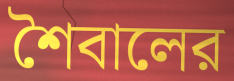
শৈবালের